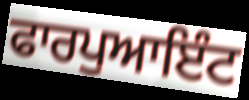
ਫਾਰਪੁਆਇੰਟ